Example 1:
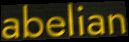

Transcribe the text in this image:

abelian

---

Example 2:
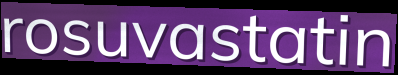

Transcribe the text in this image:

rosuvastatin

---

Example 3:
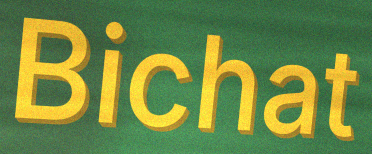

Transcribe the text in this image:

Bichat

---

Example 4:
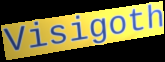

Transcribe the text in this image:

Visigoth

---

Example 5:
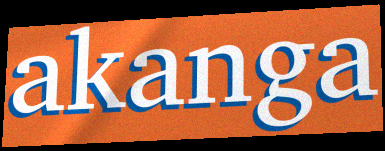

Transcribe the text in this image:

akanga